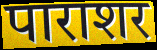
पाराशर